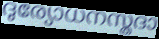
ദുര്യോധനസ്തദാ